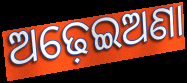
ଅଢ଼େଇଅଣା